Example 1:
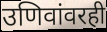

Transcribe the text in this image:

उणिवांवरही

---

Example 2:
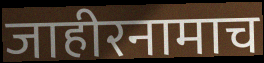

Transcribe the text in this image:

जाहीरनामाच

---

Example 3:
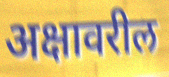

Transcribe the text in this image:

अक्षावरील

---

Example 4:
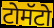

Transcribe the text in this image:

टोमॅटो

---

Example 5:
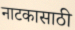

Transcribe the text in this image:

नाटकासाठी